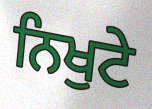
ਨਿਖੁਟੇ